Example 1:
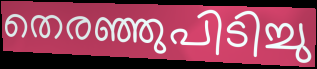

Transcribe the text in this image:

തെരഞ്ഞുപിടിച്ചു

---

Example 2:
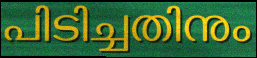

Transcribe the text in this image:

പിടിച്ചതിനും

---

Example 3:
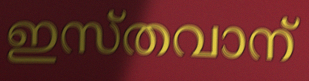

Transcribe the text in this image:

ഇസ്തവാന്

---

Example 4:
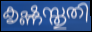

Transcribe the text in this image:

കൃഷ്ണസ്തുതി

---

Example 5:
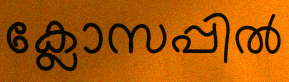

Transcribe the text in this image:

ക്ലോസപ്പിൽ